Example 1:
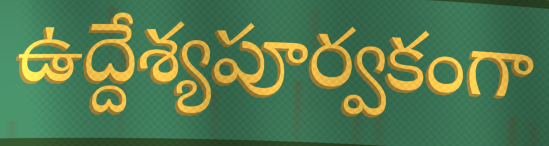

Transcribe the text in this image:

ఉద్దేశ్యపూర్వకంగా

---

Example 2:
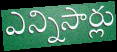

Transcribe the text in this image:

ఎన్నిసార్లు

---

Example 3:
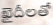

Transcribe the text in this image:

ఖైదీలతో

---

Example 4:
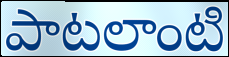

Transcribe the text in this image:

పాటలాంటి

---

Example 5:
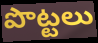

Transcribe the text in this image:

పొట్టలు